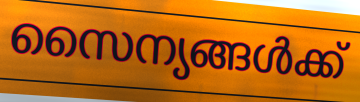
സൈന്യങ്ങൾക്ക്